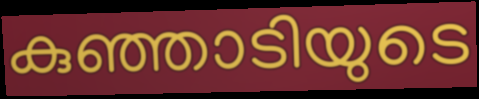
കുഞ്ഞാടിയുടെ